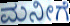
ಮನೀಗೆ